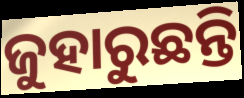
ଜୁହାରୁଛନ୍ତି